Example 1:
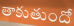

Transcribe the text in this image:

తాకుతుందో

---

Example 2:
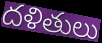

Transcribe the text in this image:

దళితులు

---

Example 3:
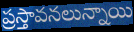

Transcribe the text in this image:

ప్రస్తావనలున్నాయి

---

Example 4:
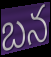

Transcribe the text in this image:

బన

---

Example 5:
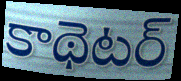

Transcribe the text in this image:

కాథెటర్